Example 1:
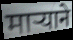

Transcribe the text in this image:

मार्‍याने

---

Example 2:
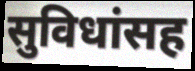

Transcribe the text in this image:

सुविधांसह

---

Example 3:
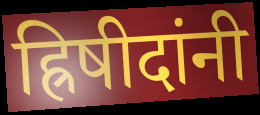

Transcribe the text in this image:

ह्रिषीदांनी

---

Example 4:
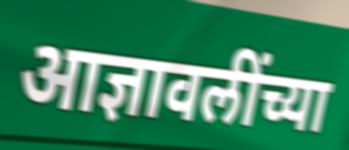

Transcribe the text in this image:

आज्ञावलींच्या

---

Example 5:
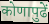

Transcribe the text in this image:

कोणापुढें